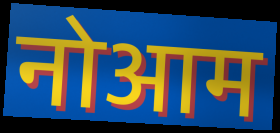
नोआम